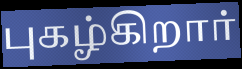
புகழ்கிறார்